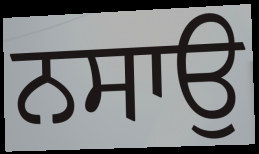
ਨਸਾਉ